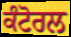
ਕੰਟੋਰਲ